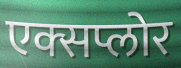
एक्‍सप्लोर